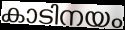
കാടിനയം